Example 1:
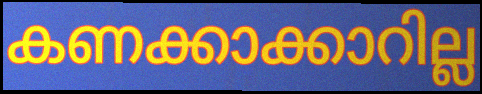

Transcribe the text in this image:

കണക്കാക്കാറില്ല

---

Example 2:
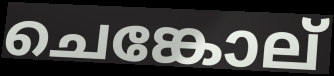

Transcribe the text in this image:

ചെങ്കോല്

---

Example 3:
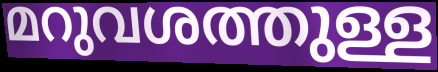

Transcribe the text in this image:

മറുവശത്തുള്ള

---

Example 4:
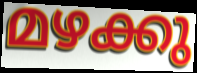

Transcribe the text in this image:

മഴക്കു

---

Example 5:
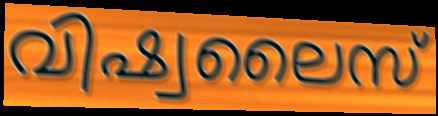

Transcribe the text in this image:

വിഷ്വലൈസ്